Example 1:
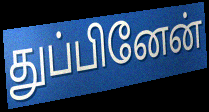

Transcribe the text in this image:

துப்பினேன்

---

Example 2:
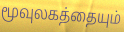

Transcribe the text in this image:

மூவுலகத்தையும்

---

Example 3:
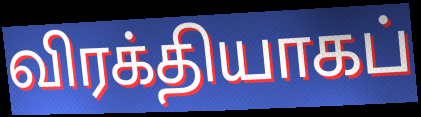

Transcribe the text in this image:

விரக்தியாகப்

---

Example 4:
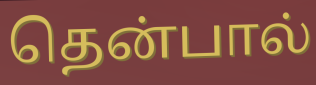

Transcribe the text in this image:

தென்பால்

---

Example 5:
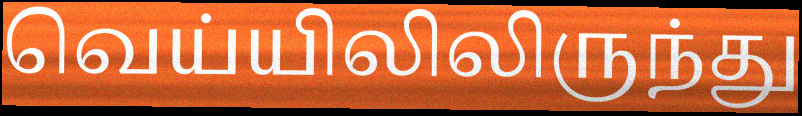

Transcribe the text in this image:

வெய்யிலிலிருந்து